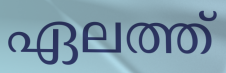
ഏലത്ത്